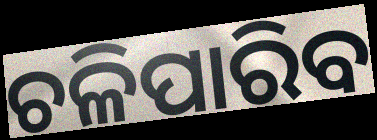
ଚଳିପାରିବ